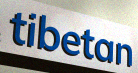
tibetan